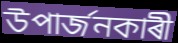
উপাৰ্জনকাৰী